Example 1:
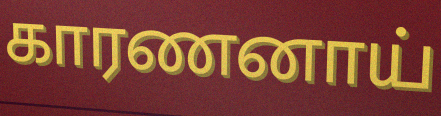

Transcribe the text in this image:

காரணனாய்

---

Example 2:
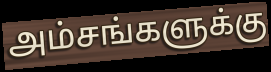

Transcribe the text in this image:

அம்சங்களுக்கு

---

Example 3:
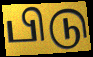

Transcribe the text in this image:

பிடு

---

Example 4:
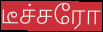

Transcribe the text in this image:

டீச்சரோ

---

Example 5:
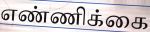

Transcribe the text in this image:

எண்ணிக்கை